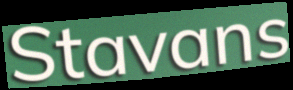
Stavans